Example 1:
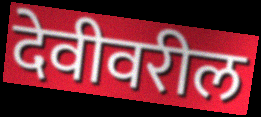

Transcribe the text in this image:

देवीवरील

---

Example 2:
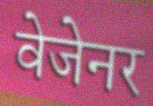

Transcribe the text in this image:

वेजेनर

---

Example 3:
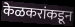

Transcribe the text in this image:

केळकरांकडून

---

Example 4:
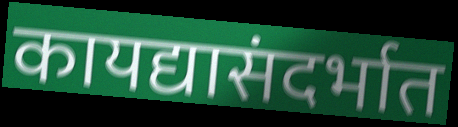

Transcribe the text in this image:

कायद्यासंदर्भात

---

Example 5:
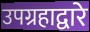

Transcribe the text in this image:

उपग्रहाद्वारे